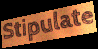
Stipulate